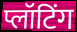
प्लॉटिंग